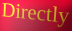
Directly